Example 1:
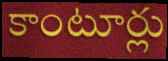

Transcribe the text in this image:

కాంటూర్లు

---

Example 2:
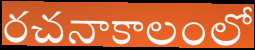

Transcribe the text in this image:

రచనాకాలంలో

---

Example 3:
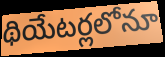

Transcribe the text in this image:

థియేటర్లలోనూ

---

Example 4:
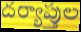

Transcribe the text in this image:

దర్యాప్తుల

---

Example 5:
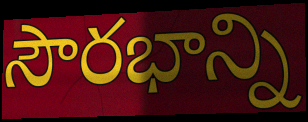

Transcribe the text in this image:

సౌరభాన్ని